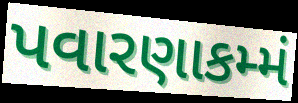
પવારણાકમ્મં